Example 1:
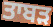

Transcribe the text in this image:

ਤਾਬੜ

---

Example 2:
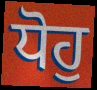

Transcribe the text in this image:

ਧੋਹੁ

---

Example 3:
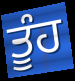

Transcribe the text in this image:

ਤੂੰਹ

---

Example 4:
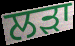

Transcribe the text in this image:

ਲੜਾ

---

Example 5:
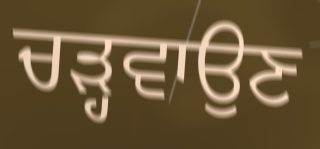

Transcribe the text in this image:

ਚੜ੍ਹਵਾਉਣ